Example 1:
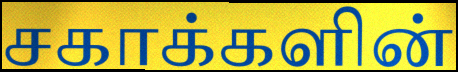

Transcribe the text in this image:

சகாக்களின்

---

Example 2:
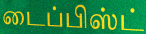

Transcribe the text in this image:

டைப்பிஸ்ட்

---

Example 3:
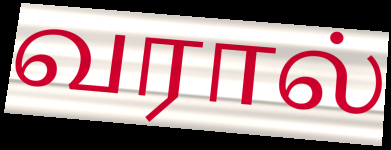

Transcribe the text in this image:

வரால்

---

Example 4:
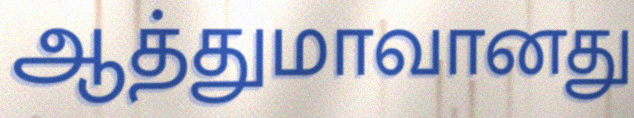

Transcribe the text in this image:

ஆத்துமாவானது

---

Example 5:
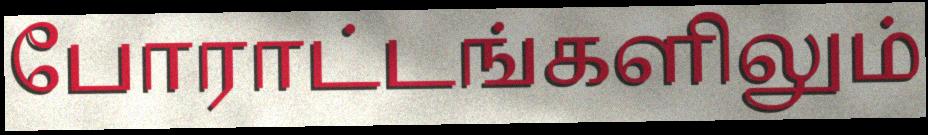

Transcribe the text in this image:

போராட்டங்களிலும்